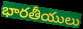
భారతీయులు